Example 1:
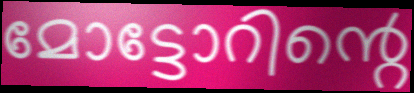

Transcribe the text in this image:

മോട്ടോറിന്റെ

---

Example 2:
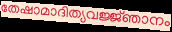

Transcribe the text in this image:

തേഷാമാദിത്യവജ്ജ്ഞാനം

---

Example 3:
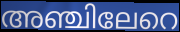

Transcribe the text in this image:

അഞ്ചിലേറെ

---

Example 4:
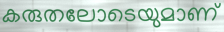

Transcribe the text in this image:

കരുതലോടെയുമാണ്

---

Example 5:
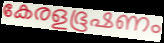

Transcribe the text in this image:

കേരളഭൂഷണം